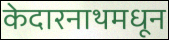
केदारनाथमधून